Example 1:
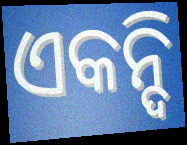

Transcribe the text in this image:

ଏକନ୍ଦି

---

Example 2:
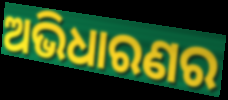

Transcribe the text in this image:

ଅଭିଧାରଣର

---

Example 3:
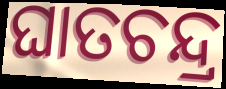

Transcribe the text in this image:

ଘାତଚନ୍ଦ୍ର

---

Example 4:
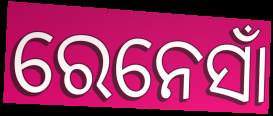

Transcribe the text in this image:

ରେନେସାଁ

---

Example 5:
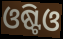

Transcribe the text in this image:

ଓଷ୍ଟିଓ